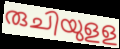
രുചിയുളള